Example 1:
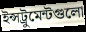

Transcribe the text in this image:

ইন্সট্রুমেন্টগুলো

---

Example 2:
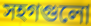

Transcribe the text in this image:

সহগগুলো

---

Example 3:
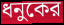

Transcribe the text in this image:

ধনুকের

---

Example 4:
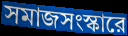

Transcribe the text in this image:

সমাজসংস্কারে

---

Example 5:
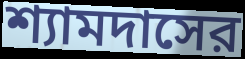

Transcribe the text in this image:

শ্যামদাসের